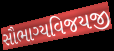
સૌભાગ્યવિજયજી